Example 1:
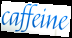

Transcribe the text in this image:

caffeine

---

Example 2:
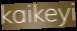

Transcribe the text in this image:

kaikeyi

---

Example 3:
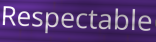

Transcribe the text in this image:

Respectable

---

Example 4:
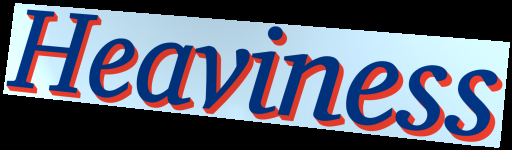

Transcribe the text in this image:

Heaviness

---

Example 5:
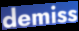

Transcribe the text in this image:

demiss